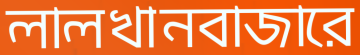
লালখানবাজারে